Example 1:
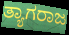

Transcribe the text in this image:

ತ್ಯಾಗರಾಜ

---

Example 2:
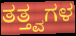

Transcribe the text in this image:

ತತ್ತ್ವಗಳ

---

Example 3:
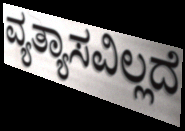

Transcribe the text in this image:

ವ್ಯತ್ಯಾಸವಿಲ್ಲದೆ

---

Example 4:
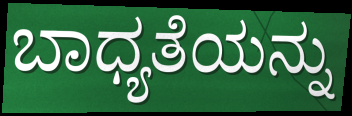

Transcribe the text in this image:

ಬಾಧ್ಯತೆಯನ್ನು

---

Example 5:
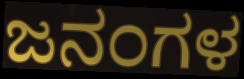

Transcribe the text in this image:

ಜನಂಗಳ